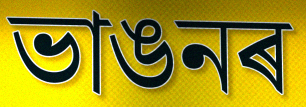
ভাঙনৰ